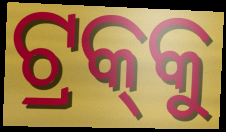
ଟ୍ରକ୍‍କୁ